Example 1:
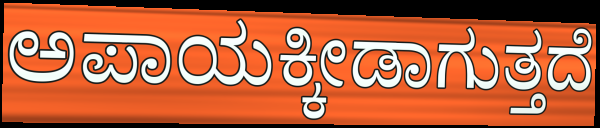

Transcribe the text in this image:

ಅಪಾಯಕ್ಕೀಡಾಗುತ್ತದೆ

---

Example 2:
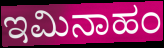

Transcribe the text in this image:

ಇಮಿನಾಹಂ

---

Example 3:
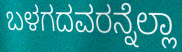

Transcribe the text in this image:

ಬಳಗದವರನ್ನೆಲ್ಲಾ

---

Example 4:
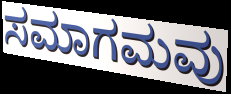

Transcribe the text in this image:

ಸಮಾಗಮವು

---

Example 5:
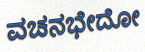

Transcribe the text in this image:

ವಚನಭೇದೋ